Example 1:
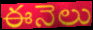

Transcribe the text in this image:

ఈనెలు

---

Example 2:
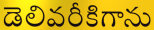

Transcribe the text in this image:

డెలివరీకిగాను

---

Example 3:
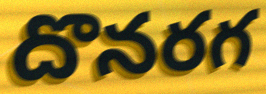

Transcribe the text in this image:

దొనరగ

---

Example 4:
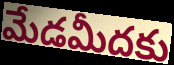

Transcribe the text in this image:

మేడమీదకు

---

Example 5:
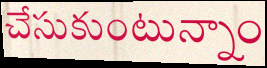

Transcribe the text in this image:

చేసుకుంటున్నాం